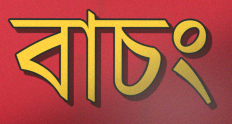
বাচং